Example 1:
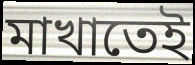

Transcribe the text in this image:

মাখাতেই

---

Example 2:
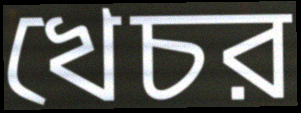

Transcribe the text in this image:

খেচর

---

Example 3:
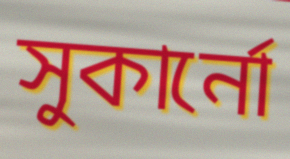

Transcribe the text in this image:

সুকার্নো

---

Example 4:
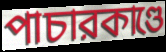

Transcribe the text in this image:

পাচারকাণ্ডে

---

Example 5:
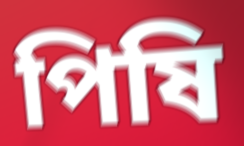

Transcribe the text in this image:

পিষি